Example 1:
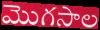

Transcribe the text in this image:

మొగసాల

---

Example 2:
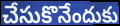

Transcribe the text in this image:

చేసుకొనేందుకు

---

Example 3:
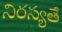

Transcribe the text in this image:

నిరస్యతే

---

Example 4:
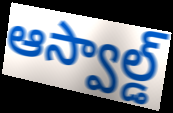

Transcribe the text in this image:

ఆస్వాల్డ్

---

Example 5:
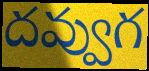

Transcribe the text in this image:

దవ్వుగ